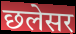
छलेसर